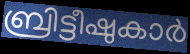
ബ്രിട്ടീഷുകാർ